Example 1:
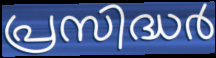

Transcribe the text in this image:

പ്രസിദ്ധർ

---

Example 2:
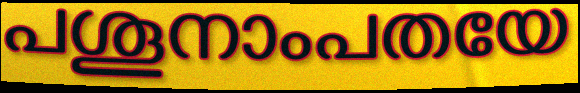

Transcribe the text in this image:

പശൂനാംപതയേ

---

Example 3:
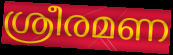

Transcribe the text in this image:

ശ്രീരമണ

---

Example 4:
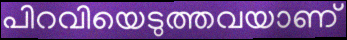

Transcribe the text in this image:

പിറവിയെടുത്തവയാണ്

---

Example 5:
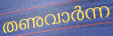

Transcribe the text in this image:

തണുവാർന്ന